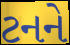
ટનને